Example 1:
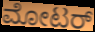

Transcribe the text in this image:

ಮೋಟರ್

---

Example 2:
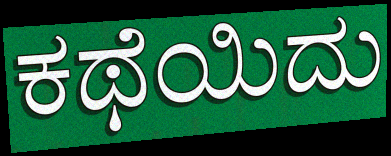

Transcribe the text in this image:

ಕಥೆಯಿದು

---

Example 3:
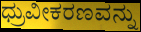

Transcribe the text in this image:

ಧ್ರುವೀಕರಣವನ್ನು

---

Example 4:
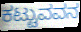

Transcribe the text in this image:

ಕಟ್ಟುವವನ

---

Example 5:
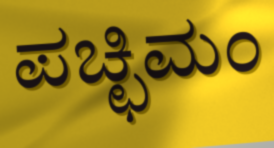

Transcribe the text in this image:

ಪಚ್ಛಿಮಂ